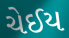
ચેઈય